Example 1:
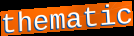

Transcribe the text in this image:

thematic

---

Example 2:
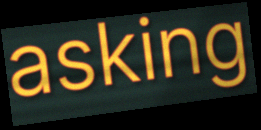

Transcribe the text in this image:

asking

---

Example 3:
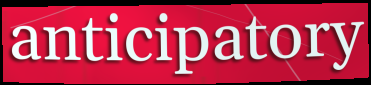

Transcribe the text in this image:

anticipatory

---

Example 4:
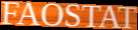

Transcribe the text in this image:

FAOSTAT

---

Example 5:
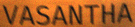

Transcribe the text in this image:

VASANTHA